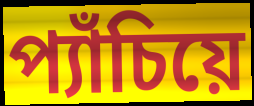
প্যাঁচিয়ে